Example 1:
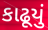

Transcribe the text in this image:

કાઢૂયું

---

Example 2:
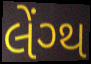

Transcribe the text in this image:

લેંગ્થ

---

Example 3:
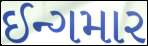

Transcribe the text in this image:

ઈન્ગમાર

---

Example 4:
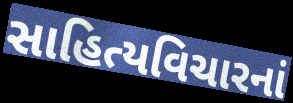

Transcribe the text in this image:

સાહિત્યવિચારનાં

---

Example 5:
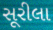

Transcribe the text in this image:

સૂરીલા